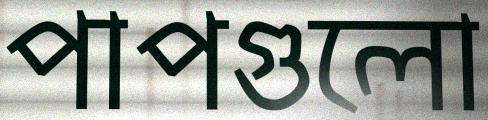
পাপগুলো